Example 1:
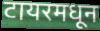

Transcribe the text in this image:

टायरमधून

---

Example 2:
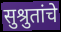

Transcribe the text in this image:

सुश्रुतांचे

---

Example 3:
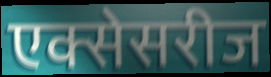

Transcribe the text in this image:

एक्सेसरीज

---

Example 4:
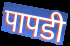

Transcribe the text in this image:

पापडी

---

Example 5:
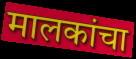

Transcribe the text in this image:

मालकांचा